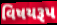
વિષયરૂપ